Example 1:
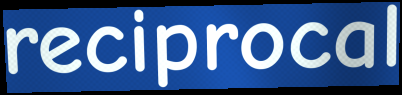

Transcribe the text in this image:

reciprocal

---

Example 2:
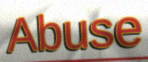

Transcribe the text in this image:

Abuse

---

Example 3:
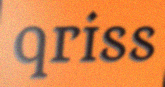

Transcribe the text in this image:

qriss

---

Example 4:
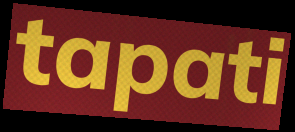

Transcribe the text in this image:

tapati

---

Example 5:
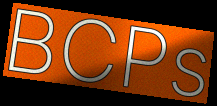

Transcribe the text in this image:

BCPs